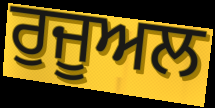
ਰੁਜੂਅਲ